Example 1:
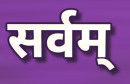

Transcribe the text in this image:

सर्वम्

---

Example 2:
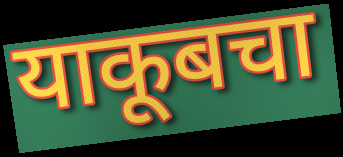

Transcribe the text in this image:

याकूबचा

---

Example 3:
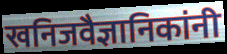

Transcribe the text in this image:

खनिजवैज्ञानिकांनी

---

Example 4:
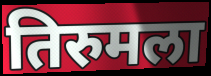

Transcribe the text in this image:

तिरुमला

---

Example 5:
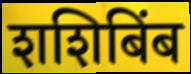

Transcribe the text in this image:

शशिबिंब